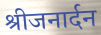
श्रीजनार्दन